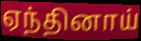
ஏந்தினாய்